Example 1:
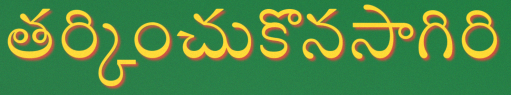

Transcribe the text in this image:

తర్కించుకొనసాగిరి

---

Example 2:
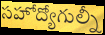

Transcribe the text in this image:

సహోద్యోగుల్నీ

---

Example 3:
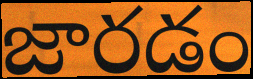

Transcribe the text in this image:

జారడం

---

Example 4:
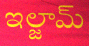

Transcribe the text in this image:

ఇల్జామ్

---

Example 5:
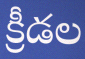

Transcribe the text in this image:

క్రీడల